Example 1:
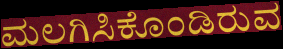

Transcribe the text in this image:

ಮಲಗಿಸಿಕೊಂಡಿರುವ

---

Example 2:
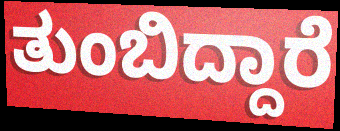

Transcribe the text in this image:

ತುಂಬಿದ್ದಾರೆ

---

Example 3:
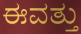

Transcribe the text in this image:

ಈವತ್ತು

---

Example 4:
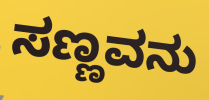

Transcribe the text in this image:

ಸಣ್ಣವನು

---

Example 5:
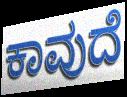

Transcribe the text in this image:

ಕಾವುದೆ